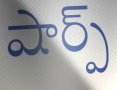
షార్ప్